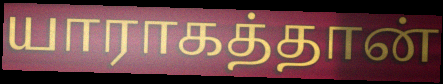
யாராகத்தான்